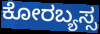
ಕೋರಬ್ಯಸ್ಸ